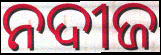
ନଦୀଜ